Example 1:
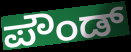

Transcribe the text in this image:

ಪೌಂಡ್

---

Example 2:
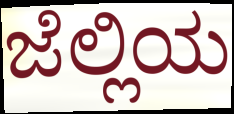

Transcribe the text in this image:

ಜೆಲ್ಲಿಯ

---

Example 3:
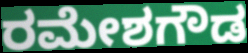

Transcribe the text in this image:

ರಮೇಶಗೌಡ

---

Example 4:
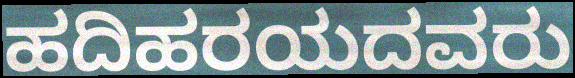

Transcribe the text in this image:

ಹದಿಹರಯದವರು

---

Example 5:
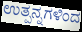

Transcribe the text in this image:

ಉತ್ಪನ್ನಗಳಿಂದ